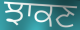
ਝਾਕਣ